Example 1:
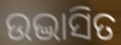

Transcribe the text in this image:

ଉଦ୍ଭାସିତ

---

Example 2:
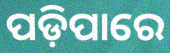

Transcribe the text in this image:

ପଡ଼ିପାରେ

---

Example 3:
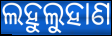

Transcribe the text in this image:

ଲହୁଲୁହାଣ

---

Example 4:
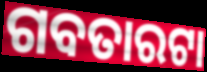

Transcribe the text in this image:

ଗବତାରଟା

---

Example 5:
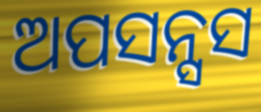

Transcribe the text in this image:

ଅପସନ୍ସସ